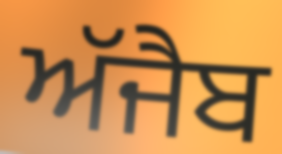
ਅੱਜੈਬ